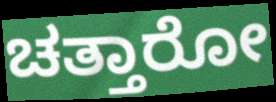
ಚತ್ತಾರೋ